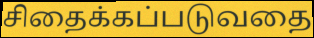
சிதைக்கப்படுவதை